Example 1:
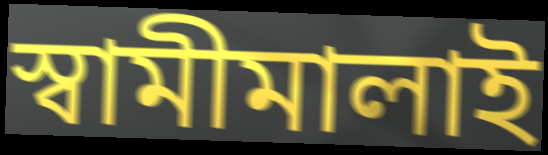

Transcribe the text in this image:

স্বামীমালাই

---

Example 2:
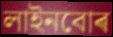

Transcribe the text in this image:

লাইনবোৰ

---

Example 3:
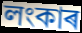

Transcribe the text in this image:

লংকাৰ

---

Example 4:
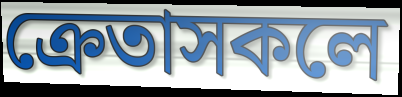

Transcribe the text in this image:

ক্ৰেতাসকলে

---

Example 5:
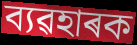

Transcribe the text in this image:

ব্যৱহাৰক